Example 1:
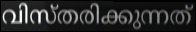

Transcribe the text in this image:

വിസ്തരിക്കുന്നത്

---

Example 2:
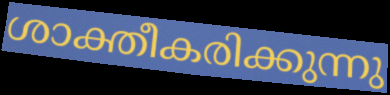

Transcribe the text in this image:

ശാക്തീകരിക്കുന്നു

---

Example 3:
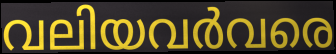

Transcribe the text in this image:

വലിയവർവരെ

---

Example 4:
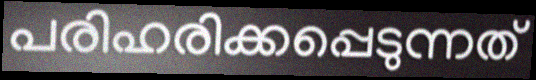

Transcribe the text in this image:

പരിഹരിക്കപ്പെടുന്നത്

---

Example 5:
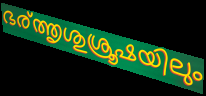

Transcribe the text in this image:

ഭര്ത്തൃശുശ്രൂഷയിലും